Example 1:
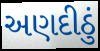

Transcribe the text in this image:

અણદીઠું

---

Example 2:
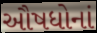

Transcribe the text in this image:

ઔષધોનાં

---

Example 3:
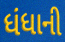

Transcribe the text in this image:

ધંધાની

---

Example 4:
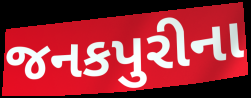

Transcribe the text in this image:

જનકપુરીના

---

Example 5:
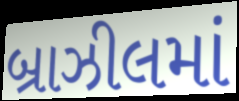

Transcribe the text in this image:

બ્રાઝીલમાં